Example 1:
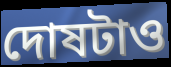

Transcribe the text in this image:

দোষটাও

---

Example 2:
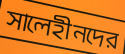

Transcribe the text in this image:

সালেহীনদের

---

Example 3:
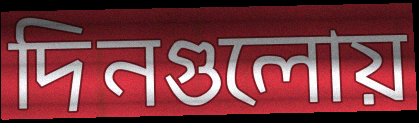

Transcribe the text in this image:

দিনগুলোয়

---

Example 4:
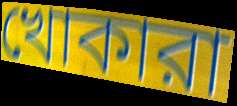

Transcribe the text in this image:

খোকারা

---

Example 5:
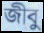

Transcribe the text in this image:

জীবু